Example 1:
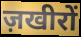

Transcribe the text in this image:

ज़खीरों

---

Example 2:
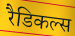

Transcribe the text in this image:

रैडिकल्स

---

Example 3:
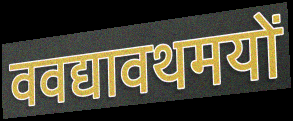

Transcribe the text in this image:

ववद्यावथमयों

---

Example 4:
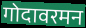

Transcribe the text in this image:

गोदावरमन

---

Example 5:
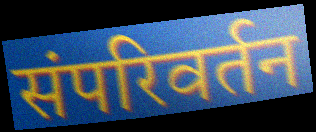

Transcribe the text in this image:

संपरिवर्तन